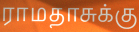
ராமதாசுக்கு